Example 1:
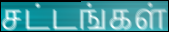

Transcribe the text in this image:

சட்டங்கள்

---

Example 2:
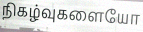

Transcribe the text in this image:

நிகழ்வுகளையோ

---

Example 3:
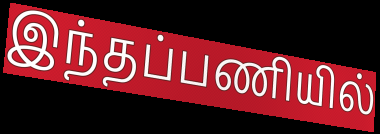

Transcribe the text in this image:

இந்தப்பணியில்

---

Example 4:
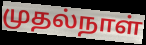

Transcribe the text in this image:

முதல்நாள்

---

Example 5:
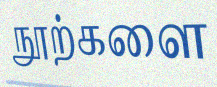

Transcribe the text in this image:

நூற்களை